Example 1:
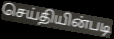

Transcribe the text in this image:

செய்தியின்படி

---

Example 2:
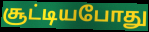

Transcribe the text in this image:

சூட்டியபோது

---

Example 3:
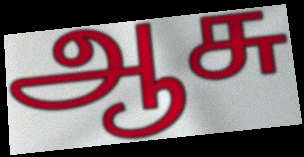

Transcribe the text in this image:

ஆசு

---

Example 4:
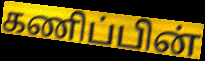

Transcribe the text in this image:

கணிப்பின்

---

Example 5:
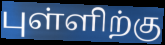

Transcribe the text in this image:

புள்ளிற்கு